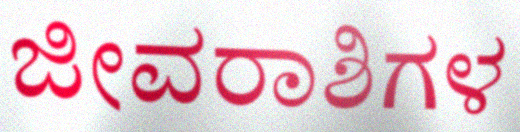
ಜೀವರಾಶಿಗಳ